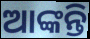
ଆଙ୍କନ୍ତି